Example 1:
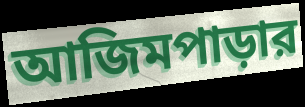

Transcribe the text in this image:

আজিমপাড়ার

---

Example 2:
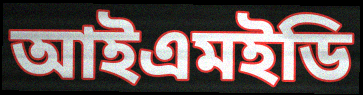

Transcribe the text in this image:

আইএমইডি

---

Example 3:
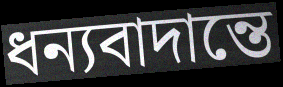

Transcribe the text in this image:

ধন্যবাদান্তে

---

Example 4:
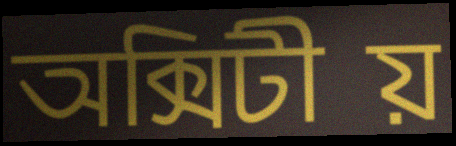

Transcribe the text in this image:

অক্সিটীয়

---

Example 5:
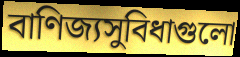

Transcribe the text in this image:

বাণিজ্যসুবিধাগুলো